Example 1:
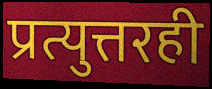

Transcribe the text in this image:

प्रत्युत्तरही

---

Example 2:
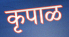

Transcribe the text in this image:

कृपाळ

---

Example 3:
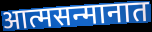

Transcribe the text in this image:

आत्मसन्मानात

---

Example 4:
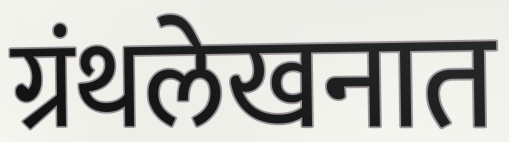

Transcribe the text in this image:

ग्रंथलेखनात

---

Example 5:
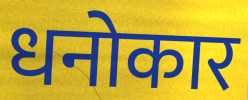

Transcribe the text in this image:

धनोकार